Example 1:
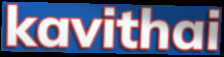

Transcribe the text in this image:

kavithai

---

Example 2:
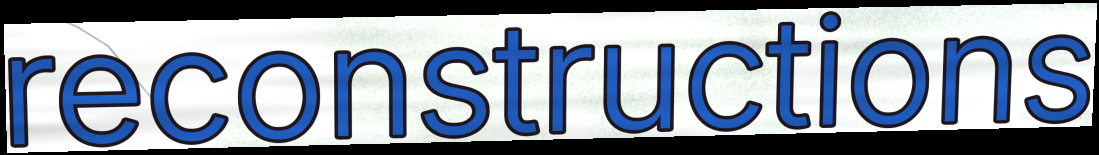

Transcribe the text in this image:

reconstructions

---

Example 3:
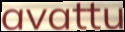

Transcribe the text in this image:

avattu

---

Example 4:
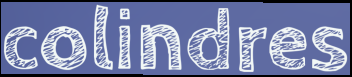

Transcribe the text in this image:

colindres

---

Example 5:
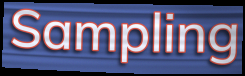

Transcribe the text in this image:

Sampling